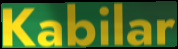
Kabilar